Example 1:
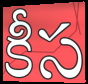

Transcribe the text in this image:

కీస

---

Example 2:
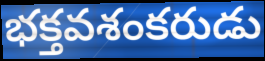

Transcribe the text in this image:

భక్తవశంకరుడు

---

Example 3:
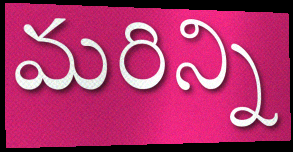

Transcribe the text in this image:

మరిన్ని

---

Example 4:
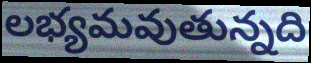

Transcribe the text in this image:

లభ్యమవుతున్నది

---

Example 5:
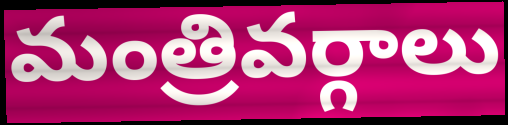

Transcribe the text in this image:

మంత్రివర్గాలు